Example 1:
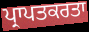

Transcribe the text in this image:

ਪ੍ਰਾਪਤਕਰਤਾ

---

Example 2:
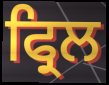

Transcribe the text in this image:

ਫ੍ਰਿਲ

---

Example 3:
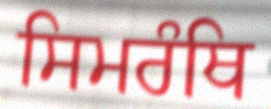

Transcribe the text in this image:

ਸਿਮਰੰਥਿ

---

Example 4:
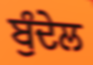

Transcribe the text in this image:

ਬੁੰਦੇਲ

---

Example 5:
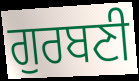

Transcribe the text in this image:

ਗੁਰਬਣੀ